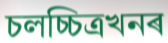
চলচ্চিত্ৰখনৰ